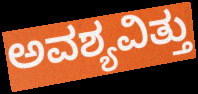
ಅವಶ್ಯವಿತ್ತು